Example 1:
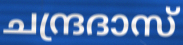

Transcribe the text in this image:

ചന്ദ്രദാസ്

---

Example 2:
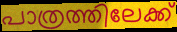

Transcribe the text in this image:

പാത്രത്തിലേക്ക്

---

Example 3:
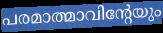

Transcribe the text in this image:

പരമാത്മാവിന്റേയും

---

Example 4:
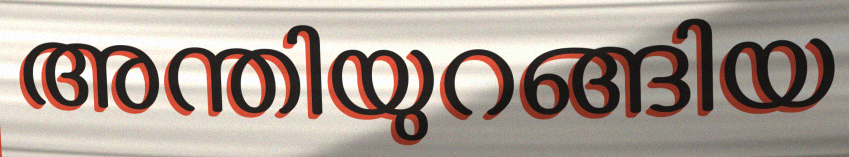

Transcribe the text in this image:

അന്തിയുറങ്ങിയ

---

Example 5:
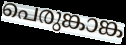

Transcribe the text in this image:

പെരുങ്കാങ്ക